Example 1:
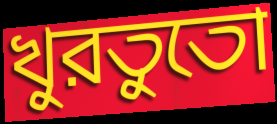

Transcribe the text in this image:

খুরতুতো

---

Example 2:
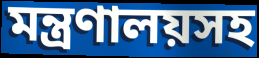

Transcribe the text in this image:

মন্ত্রণালয়সহ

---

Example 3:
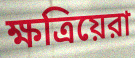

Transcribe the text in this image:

ক্ষত্রিয়েরা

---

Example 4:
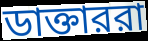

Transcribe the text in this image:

ডাক্তাররা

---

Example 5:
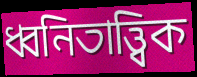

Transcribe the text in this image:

ধ্বনিতাত্ত্বিক